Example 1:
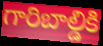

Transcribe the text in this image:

గారిబాల్డికి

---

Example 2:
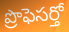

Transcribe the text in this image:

ప్రొఫెసర్తో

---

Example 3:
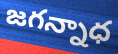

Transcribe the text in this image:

జగన్నాధ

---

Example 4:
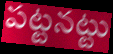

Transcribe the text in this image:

పట్టనట్టు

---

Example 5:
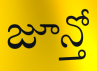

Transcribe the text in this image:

జూన్తో